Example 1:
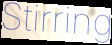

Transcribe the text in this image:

Stirring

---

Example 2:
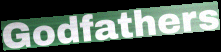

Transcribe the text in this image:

Godfathers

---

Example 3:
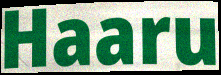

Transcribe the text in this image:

Haaru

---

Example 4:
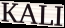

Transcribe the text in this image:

KALI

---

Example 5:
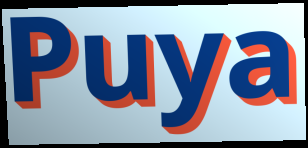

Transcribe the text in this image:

Puya